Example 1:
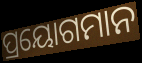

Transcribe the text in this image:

ପ୍ରୟୋଗମାନ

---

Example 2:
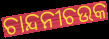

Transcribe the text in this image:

ଚାନ୍ଦନୀଚଉକ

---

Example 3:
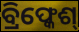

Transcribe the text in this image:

ବ୍ରିଫ୍କେଶ୍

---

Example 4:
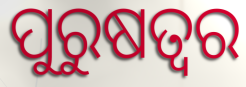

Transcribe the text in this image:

ପୁରୁଷତ୍ଵର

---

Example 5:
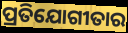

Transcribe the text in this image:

ପ୍ରତିଯୋଗୀତାର